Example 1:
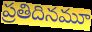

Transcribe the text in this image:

ప్రతిదినమూ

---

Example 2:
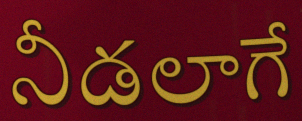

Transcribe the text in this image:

నీడలాగే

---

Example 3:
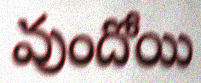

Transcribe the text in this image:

వుందోయి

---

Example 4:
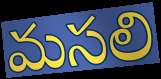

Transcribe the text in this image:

మసలి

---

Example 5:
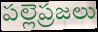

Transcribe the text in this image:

పల్లెప్రజలు